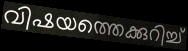
വിഷയത്തെക്കുറിച്ച്